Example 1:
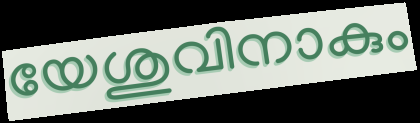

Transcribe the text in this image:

യേശുവിനാകും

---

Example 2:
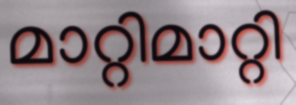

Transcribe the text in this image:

മാറ്റിമാറ്റി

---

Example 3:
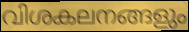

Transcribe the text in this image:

വിശകലനങ്ങളും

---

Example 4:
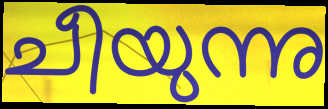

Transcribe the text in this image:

ചീയുന്നു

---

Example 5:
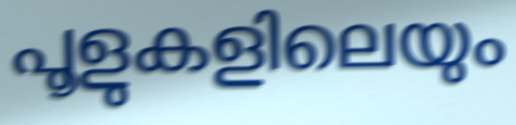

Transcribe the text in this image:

പൂളുകളിലെയും